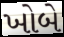
ખોબે